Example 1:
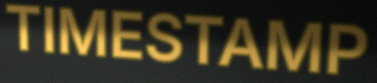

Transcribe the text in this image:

TIMESTAMP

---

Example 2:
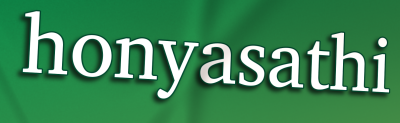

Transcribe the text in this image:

honyasathi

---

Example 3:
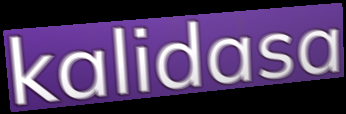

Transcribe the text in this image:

kalidasa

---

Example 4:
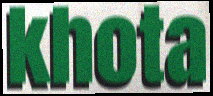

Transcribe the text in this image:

khota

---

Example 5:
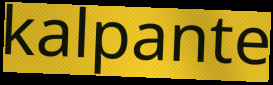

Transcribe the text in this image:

kalpante